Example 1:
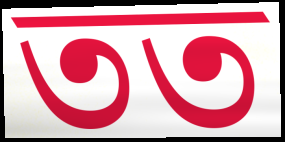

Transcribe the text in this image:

তত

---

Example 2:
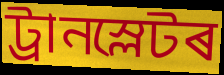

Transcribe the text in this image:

ট্ৰানস্লেটৰ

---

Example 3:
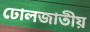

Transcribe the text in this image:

ঢোলজাতীয়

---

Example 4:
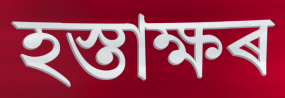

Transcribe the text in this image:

হস্তাক্ষৰ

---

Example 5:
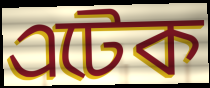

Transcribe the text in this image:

এটেক